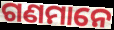
ଗଣମାନେ